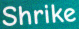
Shrike